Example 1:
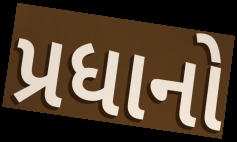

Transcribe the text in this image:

પ્રધાનો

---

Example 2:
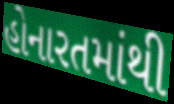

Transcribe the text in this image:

હોનારતમાંથી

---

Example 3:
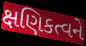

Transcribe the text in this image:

ક્ષણિકત્વને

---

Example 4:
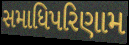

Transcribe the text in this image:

સમાધિપરિણામ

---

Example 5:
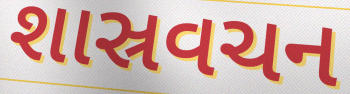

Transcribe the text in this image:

શાસ્રવચન